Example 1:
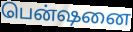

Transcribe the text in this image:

பென்ஷனை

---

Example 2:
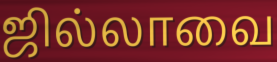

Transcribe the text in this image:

ஜில்லாவை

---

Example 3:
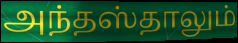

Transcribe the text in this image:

அந்தஸ்தாலும்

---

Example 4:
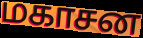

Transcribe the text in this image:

மகாசன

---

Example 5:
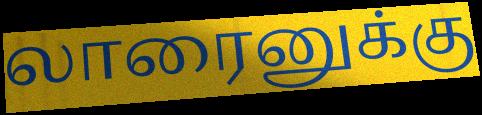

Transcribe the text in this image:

லாரைனுக்கு